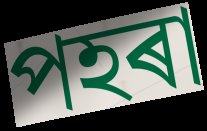
পহৰা